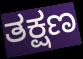
ತಕ್ಷಣ